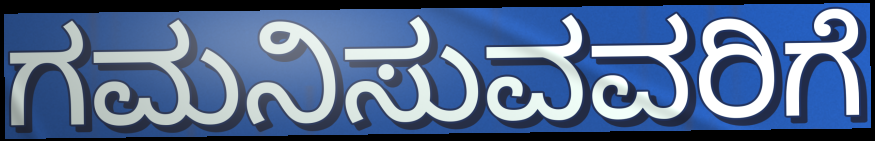
ಗಮನಿಸುವವರಿಗೆ